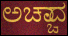
ಅಚ್ಚಾದ